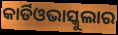
କାର୍ଡିଓଭାସ୍କୁଲାର